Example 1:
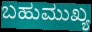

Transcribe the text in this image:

ಬಹುಮುಖ್ಯ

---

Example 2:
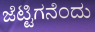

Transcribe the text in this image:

ಜೆಟ್ಟಿಗನೆಂದು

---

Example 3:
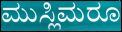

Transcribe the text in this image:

ಮುಸ್ಲಿಮರೂ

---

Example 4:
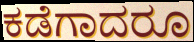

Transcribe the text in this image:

ಕಡೆಗಾದರೂ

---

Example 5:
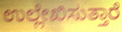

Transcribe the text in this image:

ಉಲ್ಲೇಖಿಸುತ್ತಾರೆ